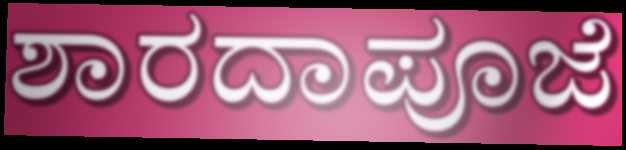
ಶಾರದಾಪೂಜೆ